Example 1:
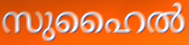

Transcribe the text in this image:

സുഹൈൽ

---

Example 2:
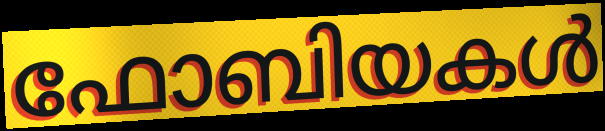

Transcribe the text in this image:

ഫോബിയകൾ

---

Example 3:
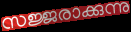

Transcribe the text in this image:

സജ്ജരാക്കുന്നു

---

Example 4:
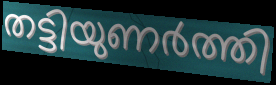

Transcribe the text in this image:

തട്ടിയുണർത്തി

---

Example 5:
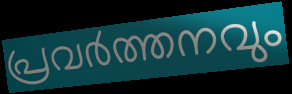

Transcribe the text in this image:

പ്രവർത്തനവും